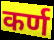
कर्ण